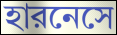
হারনেসে